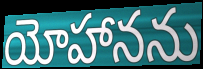
యోహానను